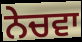
ਨੇਚਵਾ